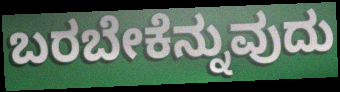
ಬರಬೇಕೆನ್ನುವುದು